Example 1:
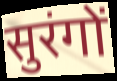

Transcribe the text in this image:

सुरंगों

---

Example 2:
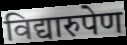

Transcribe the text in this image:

विद्यारुपेण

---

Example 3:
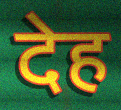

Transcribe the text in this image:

देह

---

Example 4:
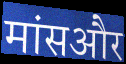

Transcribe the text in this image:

मांसऔर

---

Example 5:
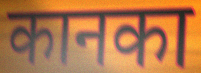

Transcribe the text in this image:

कानका